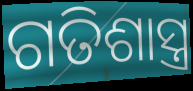
ଗତିଶାସ୍ତ୍ର